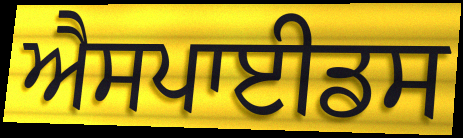
ਐਸਪਾਈਡਸ